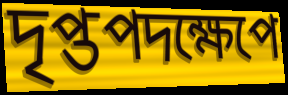
দৃপ্তপদক্ষেপে